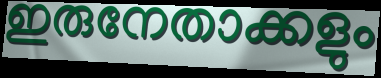
ഇരുനേതാക്കളും